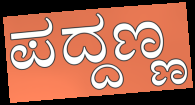
ಪದ್ದಣ್ಣ